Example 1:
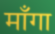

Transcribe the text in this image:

माँगा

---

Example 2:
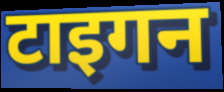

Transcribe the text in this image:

टाइगन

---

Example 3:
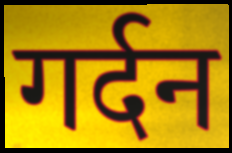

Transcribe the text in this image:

गर्दन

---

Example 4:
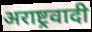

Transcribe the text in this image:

अराष्ट्रवादी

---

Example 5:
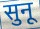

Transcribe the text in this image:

सुनू